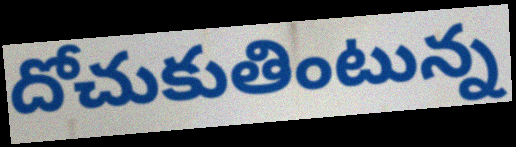
దోచుకుతింటున్న